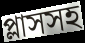
প্লাসসহ